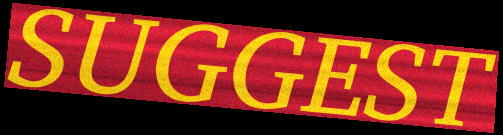
SUGGEST